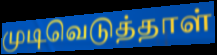
முடிவெடுத்தாள்